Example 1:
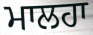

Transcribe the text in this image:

ਮਾਲਹਾ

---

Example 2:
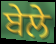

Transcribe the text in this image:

ਬੇਲੇ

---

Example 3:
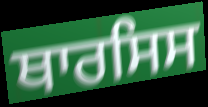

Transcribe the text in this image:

ਥਾਰਸਿਸ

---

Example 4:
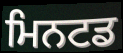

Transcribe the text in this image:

ਮਿਨਟਡ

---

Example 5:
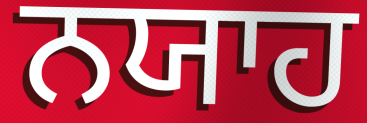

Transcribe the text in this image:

ਨਯਾਹ